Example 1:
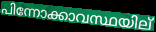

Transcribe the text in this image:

പിന്നോക്കാവസ്ഥയില്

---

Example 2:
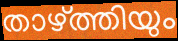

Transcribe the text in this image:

താഴ്ത്തിയും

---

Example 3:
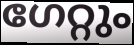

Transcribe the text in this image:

ഗേറ്റും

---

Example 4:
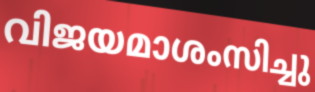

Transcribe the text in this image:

വിജയമാശംസിച്ചു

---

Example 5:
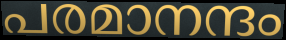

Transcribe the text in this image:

പരമാനന്ദം